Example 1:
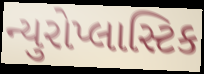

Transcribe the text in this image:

ન્યુરોપ્લાસ્ટિક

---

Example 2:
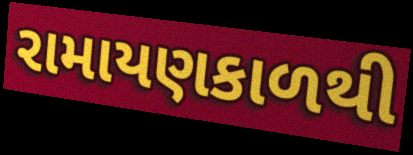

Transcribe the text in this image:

રામાયણકાળથી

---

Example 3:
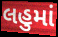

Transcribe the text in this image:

લહુમાં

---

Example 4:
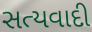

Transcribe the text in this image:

સત્યવાદી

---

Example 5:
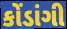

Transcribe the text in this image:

કોંડાંગી